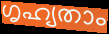
ഗൃഹ്യതാം